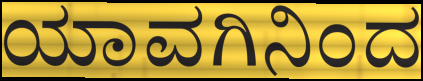
ಯಾವಗಿನಿಂದ